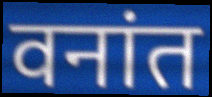
वनांत